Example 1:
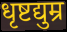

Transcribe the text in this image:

धृष्टद्युम्र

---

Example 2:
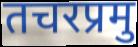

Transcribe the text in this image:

तचरप्रमु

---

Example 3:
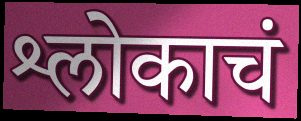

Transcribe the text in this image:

श्लोकाचं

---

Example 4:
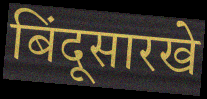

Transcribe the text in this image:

बिंदूसारखे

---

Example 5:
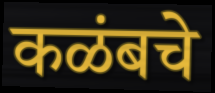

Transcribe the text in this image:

कळंबचे